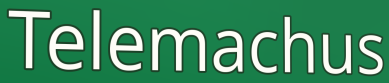
Telemachus